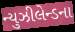
ન્યુઝીલેન્ડના